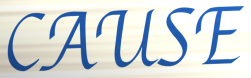
CAUSE